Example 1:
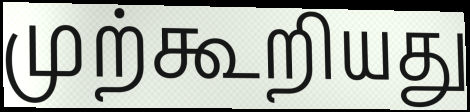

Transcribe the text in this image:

முற்கூறியது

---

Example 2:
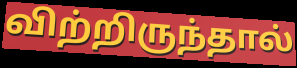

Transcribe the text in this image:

விற்றிருந்தால்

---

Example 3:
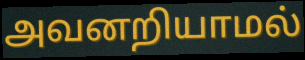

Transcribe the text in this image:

அவனறியாமல்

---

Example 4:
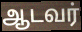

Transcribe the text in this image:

ஆடவர்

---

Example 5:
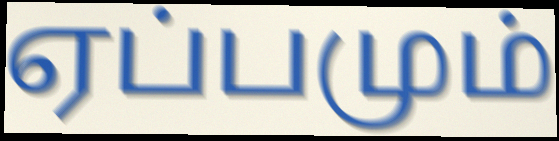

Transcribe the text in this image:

ஏப்பமும்